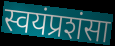
स्वयंप्रशंसा